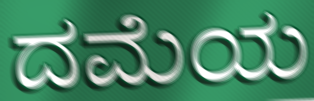
ದಮೆಯ